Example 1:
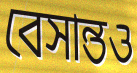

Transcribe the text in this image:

বেসান্তও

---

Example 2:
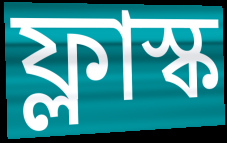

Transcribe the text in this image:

ফ্লাস্ক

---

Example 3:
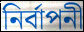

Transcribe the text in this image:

নির্বাপনী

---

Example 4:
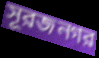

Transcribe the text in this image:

সূরজনগর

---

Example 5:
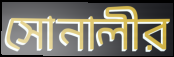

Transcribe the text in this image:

সোনালীর